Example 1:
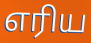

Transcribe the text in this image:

எரிய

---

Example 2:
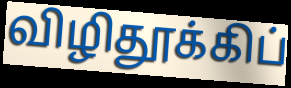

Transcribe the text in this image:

விழிதூக்கிப்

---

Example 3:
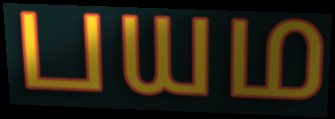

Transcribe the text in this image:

பயம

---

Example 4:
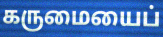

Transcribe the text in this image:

கருமையைப்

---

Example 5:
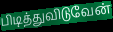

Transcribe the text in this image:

பிடித்துவிடுவேன்